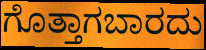
ಗೊತ್ತಾಗಬಾರದು